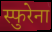
स्फुरेना